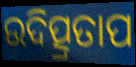
ଉଦିତ୍ପ୍ରତାପ